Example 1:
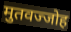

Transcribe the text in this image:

मुतवज्जोह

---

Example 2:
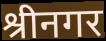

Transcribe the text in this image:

श्रीनगर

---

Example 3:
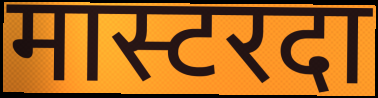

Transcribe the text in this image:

मास्टरदा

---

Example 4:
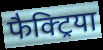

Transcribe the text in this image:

फैक्ट्रिया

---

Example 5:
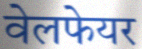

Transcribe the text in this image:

वेलफेयर